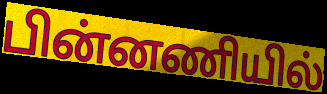
பின்னணியில்